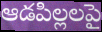
ఆడపిల్లలపై